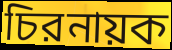
চিরনায়ক